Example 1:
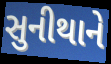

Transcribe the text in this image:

સુનીથાને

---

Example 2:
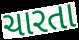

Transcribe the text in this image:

ચારતા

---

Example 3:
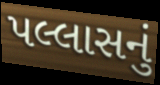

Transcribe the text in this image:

પલ્લાસનું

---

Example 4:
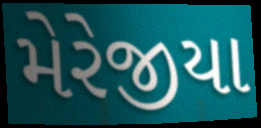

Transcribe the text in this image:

મેરેજીયા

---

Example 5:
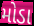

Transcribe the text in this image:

મોડા